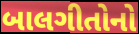
બાલગીતોનો